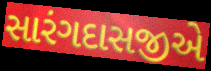
સારંગદાસજીએ